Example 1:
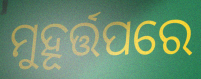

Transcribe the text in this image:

ମୁହୂର୍ତ୍ତପରେ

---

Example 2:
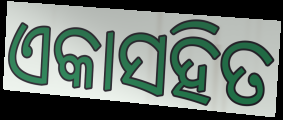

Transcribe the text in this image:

ଏକାସହିତ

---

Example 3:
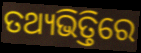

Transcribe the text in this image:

ତଥ୍ୟଭିତ୍ତିରେ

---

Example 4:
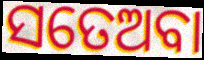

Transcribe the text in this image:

ସତେଅବା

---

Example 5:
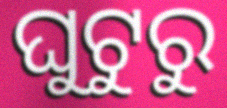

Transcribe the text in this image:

ଘୁଟୁରୁ